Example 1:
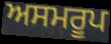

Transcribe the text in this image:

ਅਸਮਰੂਪ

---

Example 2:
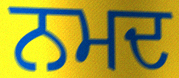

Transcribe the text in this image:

ਨਮਦ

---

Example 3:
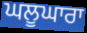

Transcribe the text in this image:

ਘਲੂਘਾਰਾ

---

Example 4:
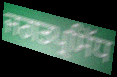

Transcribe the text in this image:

ਜਗਤਪ੍ਰਸਿੱਧ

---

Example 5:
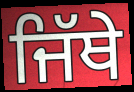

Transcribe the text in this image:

ਜਿੱਥੇ